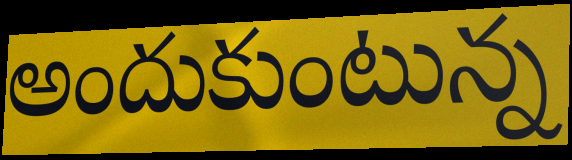
అందుకుంటున్న